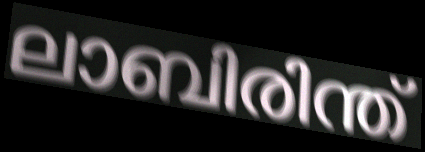
ലാബിരിന്ത്